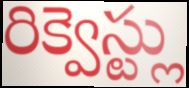
రిక్వెస్ట్లు